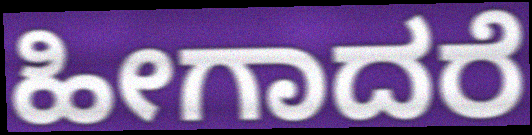
ಹೀಗಾದರೆ